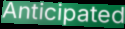
Anticipated